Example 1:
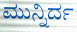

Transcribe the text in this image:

ಮುನ್ನಿರ್ದ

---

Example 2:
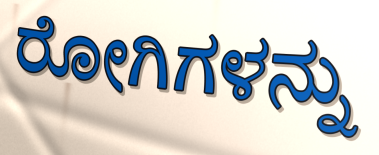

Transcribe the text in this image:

ರೋಗಿಗಳನ್ನು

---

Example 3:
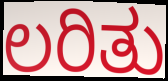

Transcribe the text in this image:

ಲರಿತು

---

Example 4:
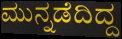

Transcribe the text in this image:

ಮುನ್ನಡೆದಿದ್ದ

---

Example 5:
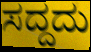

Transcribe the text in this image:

ಸದ್ದದು